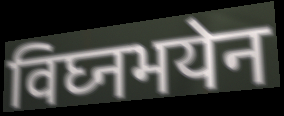
विघ्नभयेन